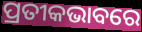
ପ୍ରତୀକଭାବରେ